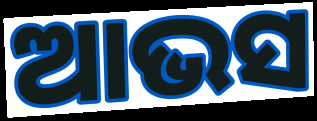
ଆଭସ